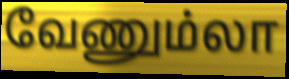
வேணும்லா